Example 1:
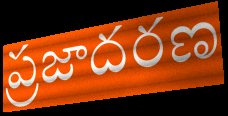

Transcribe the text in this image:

ప్రజాదరణ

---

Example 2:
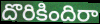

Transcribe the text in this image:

దొరికిందిరా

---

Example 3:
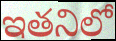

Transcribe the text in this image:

ఇతనిలో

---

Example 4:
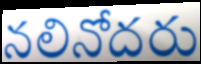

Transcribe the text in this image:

నలినోదరు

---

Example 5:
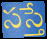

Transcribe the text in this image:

సస్తే